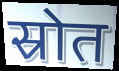
स्रोत